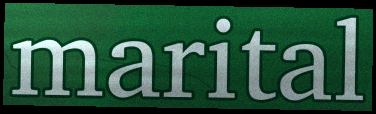
marital